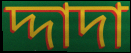
দ্দাদা